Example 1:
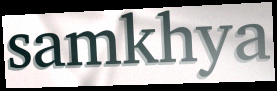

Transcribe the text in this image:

samkhya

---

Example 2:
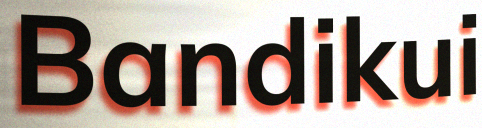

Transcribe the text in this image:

Bandikui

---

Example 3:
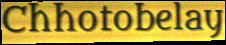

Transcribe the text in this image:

Chhotobelay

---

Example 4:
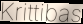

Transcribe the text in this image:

Krittibas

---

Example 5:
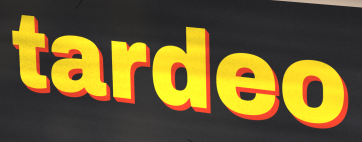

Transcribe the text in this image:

tardeo